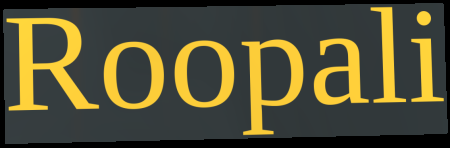
Roopali